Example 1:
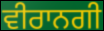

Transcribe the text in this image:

ਵੀਰਾਨਗੀ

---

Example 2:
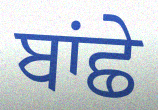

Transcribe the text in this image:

ਬਾਂਛੇ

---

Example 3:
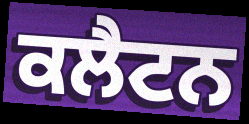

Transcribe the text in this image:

ਕਲੈਟਨ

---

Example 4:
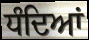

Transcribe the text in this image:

ਧੰਦਿਆਂ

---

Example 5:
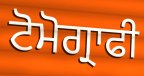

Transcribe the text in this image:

ਟੋਮੋਗ੍ਰਾਫੀ